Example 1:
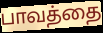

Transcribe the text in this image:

பாவத்தை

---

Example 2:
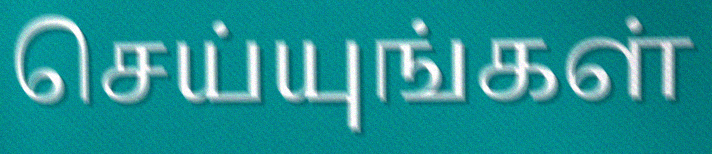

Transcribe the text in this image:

செய்யுங்கள்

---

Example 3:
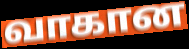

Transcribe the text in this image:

வாகான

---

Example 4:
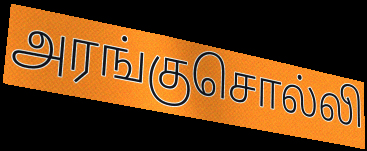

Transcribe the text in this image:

அரங்குசொல்லி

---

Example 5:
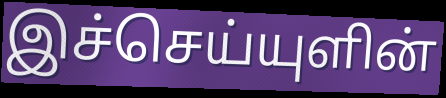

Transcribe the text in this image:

இச்செய்யுளின்